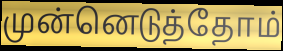
முன்னெடுத்தோம்